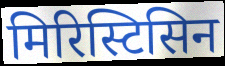
मिरिस्टिसिन